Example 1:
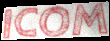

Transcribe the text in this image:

ICOM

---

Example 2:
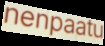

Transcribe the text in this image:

nenpaatu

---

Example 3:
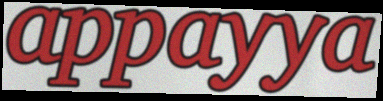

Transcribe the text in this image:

appayya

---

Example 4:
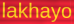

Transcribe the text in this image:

lakhayo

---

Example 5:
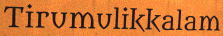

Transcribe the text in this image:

Tirumulikkalam